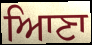
ਆਿਣਾ